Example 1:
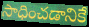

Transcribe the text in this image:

సాధించడానికే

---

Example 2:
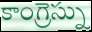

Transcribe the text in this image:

కాంగ్రెస్ను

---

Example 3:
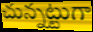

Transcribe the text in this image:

చున్నట్టుగా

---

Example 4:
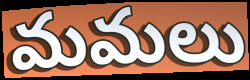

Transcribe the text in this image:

మమలు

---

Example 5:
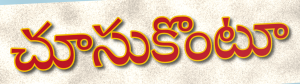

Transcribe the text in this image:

చూసుకొంటూ